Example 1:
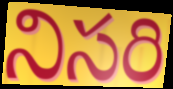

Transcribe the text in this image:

నిసరి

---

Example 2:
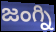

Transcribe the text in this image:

జంగ్ని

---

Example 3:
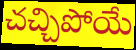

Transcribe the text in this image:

చచ్చిపోయే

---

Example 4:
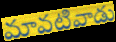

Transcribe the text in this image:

మావటివాడు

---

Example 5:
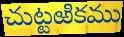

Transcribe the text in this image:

చుట్టఱికము